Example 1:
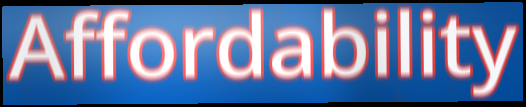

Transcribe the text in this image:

Affordability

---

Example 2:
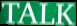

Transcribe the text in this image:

TALK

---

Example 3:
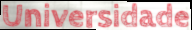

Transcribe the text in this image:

Universidade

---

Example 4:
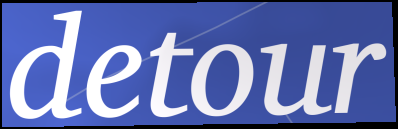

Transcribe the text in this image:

detour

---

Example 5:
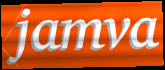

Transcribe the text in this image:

jamva